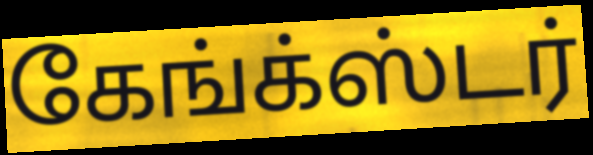
கேங்க்ஸ்டர்